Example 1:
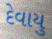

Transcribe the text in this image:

દેવાયુ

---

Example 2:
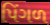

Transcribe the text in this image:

પિંગળ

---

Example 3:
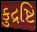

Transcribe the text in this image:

કુદ્રષ્ટિ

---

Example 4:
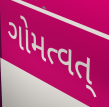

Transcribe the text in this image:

ગોમત્વત્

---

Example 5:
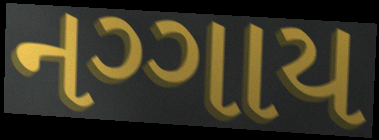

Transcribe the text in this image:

નગ્ગાય